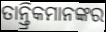
ତାନ୍ତ୍ରିକମାନଙ୍କର